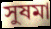
সুষমা